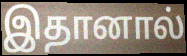
இதானால்